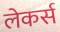
लेकर्स